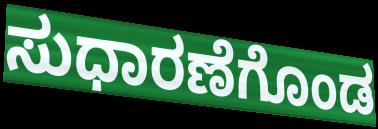
ಸುಧಾರಣೆಗೊಂಡ